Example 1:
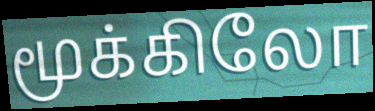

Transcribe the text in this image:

மூக்கிலோ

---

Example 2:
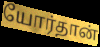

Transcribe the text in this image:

யோர்தான்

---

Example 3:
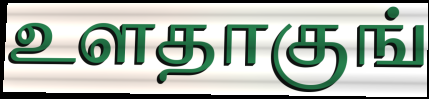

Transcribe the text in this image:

உளதாகுங்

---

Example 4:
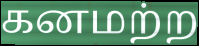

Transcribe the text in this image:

கனமற்ற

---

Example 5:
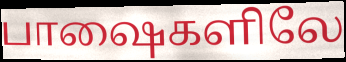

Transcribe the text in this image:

பாஷைகளிலே